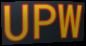
UPW